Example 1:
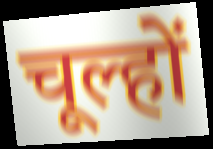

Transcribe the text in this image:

चूल्हों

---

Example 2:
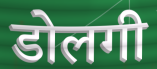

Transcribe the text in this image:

डोलगी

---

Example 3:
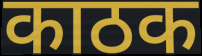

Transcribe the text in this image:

काठक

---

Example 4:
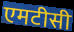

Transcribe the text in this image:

एमटीसी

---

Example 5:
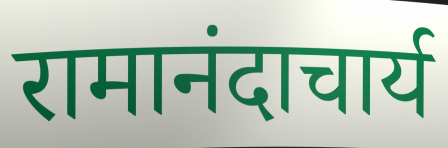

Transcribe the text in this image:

रामानंदाचार्य